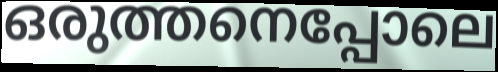
ഒരുത്തനെപ്പോലെ